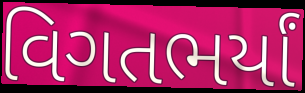
વિગતભર્યાં